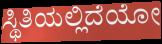
ಸ್ಥಿತಿಯಲ್ಲಿದೆಯೋ